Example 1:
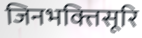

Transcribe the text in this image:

जिनभक्तिसूरि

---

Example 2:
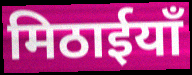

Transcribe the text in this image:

मिठाईयाँ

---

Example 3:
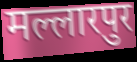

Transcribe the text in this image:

मल्लारपुर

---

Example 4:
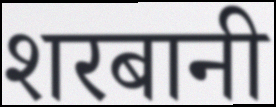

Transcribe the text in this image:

शरबानी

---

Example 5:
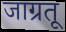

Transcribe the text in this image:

जाग्रतू